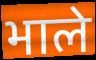
भाले